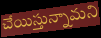
చేయిస్తున్నామని